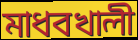
মাধবখালী